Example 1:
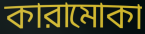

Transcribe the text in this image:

কারামোকা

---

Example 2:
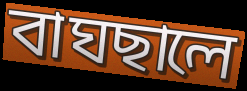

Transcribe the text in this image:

বাঘছালে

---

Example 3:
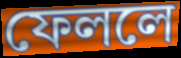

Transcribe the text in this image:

ফেললে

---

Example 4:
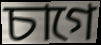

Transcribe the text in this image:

চাগে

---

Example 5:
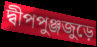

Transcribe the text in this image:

দ্বীপপুঞ্জজুড়ে